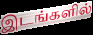
இடங்களில்